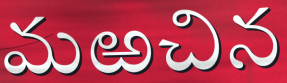
మఱచిన